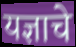
यज्ञाचे